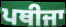
ਪਥੀਜਾ